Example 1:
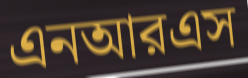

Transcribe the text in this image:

এনআরএস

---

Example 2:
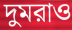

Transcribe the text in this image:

দুমরাও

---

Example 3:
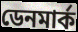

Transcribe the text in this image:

ডেনমার্ক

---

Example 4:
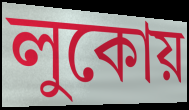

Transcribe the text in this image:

লুকোয়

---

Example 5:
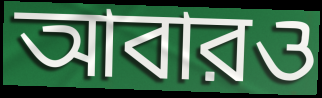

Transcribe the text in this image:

আবারও